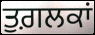
ਤੁਗ਼ਲਕਾਂ